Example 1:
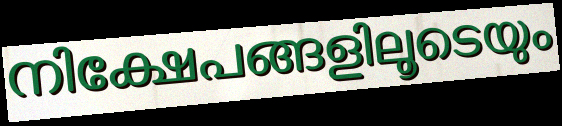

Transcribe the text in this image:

നിക്ഷേപങ്ങളിലൂടെയും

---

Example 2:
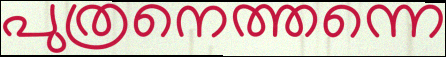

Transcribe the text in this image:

പുത്രനെത്തന്നെ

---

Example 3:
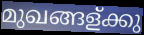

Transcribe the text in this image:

മുഖങ്ങള്ക്കു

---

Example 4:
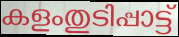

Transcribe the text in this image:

കളംതുടിപ്പാട്ട്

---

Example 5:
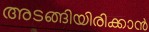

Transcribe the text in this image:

അടങ്ങിയിരിക്കാൻ